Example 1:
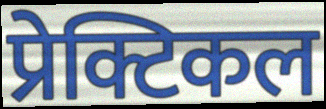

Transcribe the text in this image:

प्रेक्टिकल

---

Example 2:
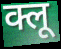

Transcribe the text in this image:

क्लू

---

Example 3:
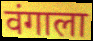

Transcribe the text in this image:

वंगाला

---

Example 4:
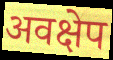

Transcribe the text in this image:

अवक्षेप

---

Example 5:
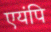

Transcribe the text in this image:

एयंपि